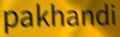
pakhandi